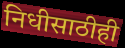
निधीसाठीही